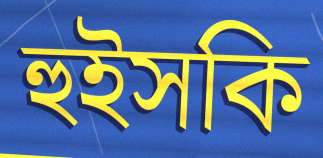
হুইসকি